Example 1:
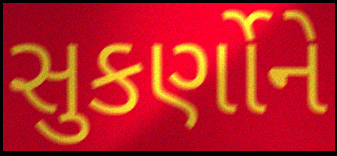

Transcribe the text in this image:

સુકર્ણોને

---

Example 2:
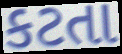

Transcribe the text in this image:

કટતા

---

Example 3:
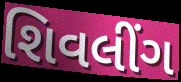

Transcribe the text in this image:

શિવલીંગ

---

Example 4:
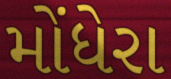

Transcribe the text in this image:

મોંધેરા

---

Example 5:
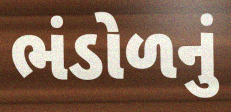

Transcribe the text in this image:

ભંડોળનું